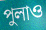
পুলাও